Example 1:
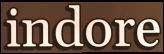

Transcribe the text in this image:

indore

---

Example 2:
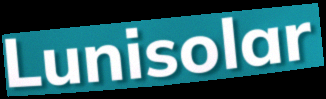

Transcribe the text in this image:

Lunisolar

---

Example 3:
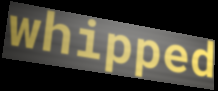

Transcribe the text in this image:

whipped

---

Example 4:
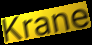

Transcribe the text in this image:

Krane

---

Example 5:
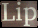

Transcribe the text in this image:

Lip